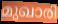
മുഖാരി